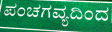
ಪಂಚಗವ್ಯದಿಂದ